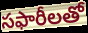
సఫారీలతో